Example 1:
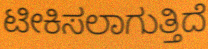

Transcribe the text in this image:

ಟೀಕಿಸಲಾಗುತ್ತಿದೆ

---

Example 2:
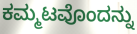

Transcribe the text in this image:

ಕಮ್ಮಟವೊಂದನ್ನು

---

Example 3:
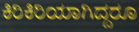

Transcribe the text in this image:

ಕಿರಿಕಿರಿಯಾಗಿದ್ದರೂ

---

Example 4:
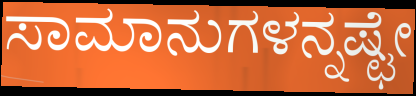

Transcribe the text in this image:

ಸಾಮಾನುಗಳನ್ನಷ್ಟೇ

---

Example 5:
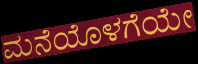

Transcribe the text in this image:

ಮನೆಯೊಳಗೆಯೇ